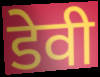
डेवी